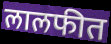
लालफीत